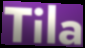
Tila